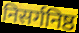
निसर्गनिष्ठ